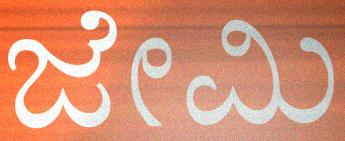
ಜೇಮಿ